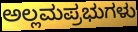
ಅಲ್ಲಮಪ್ರಭುಗಳು